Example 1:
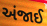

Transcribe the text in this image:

અંજાઈ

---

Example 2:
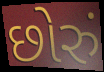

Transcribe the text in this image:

છોરું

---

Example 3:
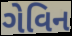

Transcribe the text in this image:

ગેવિન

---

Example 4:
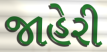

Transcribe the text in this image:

જાહેરી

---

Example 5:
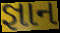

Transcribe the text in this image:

જ્ઞાન